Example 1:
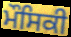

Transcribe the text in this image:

ਮੌਸਿਕੀ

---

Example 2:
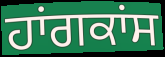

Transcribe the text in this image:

ਹਾਂਗਕਾਂਸ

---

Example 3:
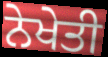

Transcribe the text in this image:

ਨੇਖੇਤੀ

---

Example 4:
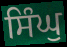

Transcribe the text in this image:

ਸਿੰਘੁ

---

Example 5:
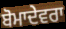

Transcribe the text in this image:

ਬੋਮਾਦੇਵਰਾ